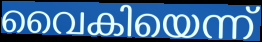
വൈകിയെന്ന്